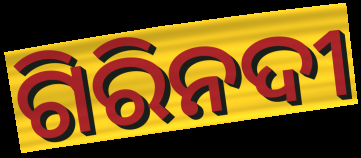
ଗିରିନଦୀ